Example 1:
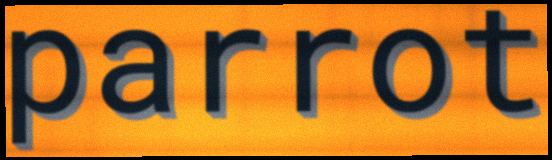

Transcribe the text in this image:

parrot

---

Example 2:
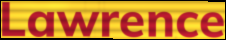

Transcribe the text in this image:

Lawrence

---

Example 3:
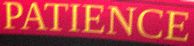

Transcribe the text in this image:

PATIENCE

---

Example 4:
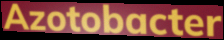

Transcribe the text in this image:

Azotobacter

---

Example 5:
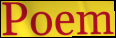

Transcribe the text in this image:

Poem